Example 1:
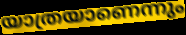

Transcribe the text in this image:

യാത്രയാണെന്നും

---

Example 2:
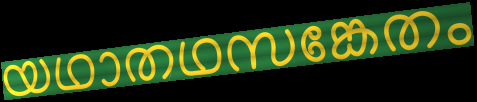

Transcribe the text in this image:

യഥാതഥസങ്കേതം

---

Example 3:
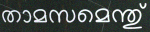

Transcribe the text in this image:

താമസമെന്തു്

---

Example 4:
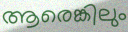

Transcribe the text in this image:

ആരെങ്കിലും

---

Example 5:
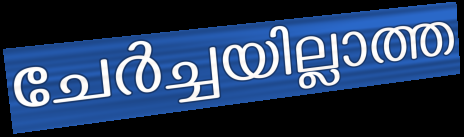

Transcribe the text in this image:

ചേർച്ചയില്ലാത്ത